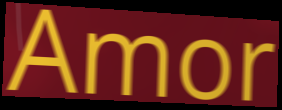
Amor